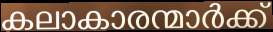
കലാകാരന്മാർക്ക്